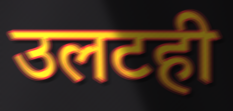
उलटही